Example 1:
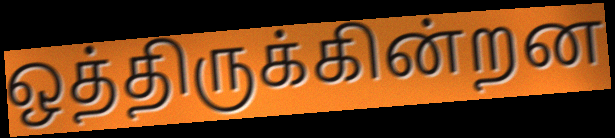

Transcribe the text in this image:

ஒத்திருக்கின்றன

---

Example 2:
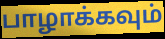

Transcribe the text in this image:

பாழாக்கவும்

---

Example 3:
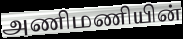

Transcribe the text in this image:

அணிமணியின்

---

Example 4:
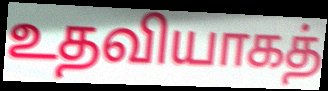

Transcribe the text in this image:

உதவியாகத்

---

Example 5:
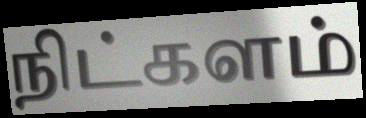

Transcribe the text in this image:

நிட்களம்